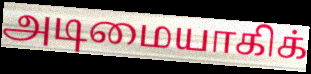
அடிமையாகிக்